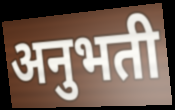
अनुभती